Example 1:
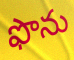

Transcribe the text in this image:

ఫొను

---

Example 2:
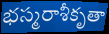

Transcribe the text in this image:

భస్మరాశీకృతా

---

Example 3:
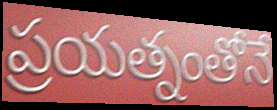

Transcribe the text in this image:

ప్రయత్నంతోనే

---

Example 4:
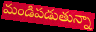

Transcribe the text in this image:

మండిపడుతున్నా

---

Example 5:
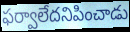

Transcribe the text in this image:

ఫర్వాలేదనిపించాడు